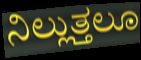
ನಿಲ್ಲುತ್ತಲೂ